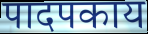
पादपकाय